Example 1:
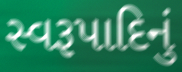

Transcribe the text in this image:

સ્વરૂપાદિનું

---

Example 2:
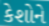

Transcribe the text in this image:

કેશોને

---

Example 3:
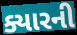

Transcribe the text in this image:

ક્યારની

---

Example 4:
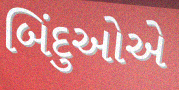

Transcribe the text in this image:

બિંદુઓએ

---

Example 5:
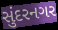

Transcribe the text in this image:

સુંદરનગર